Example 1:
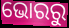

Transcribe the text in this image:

ଭୋରରୁ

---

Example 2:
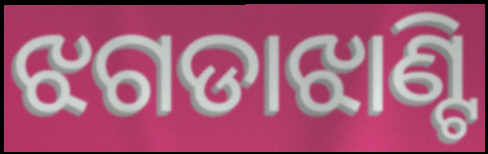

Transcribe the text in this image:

ଝଗଡାଝାଣ୍ଟି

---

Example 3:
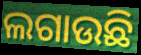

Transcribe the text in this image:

ଲଗାଉଛି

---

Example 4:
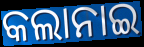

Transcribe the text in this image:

କଲାନାଇ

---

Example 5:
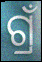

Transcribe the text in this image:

ଗ୍ରଁ